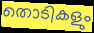
തൊടികളും